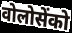
वोलोसेंको